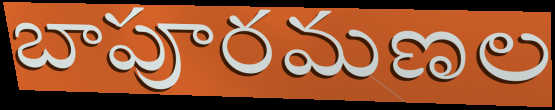
బాపూరమణల